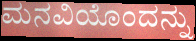
ಮನವಿಯೊಂದನ್ನು